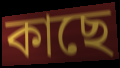
কাছে